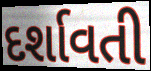
દર્શાવતી